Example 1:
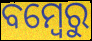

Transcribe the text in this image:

ବମ୍ବେରୁ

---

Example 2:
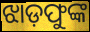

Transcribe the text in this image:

ଝାଡ଼ଫୁଙ୍କ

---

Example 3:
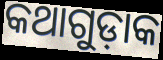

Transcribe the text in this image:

କଥାଗୁଡ଼ାକ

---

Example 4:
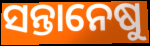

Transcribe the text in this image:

ସନ୍ତାନେଷୁ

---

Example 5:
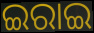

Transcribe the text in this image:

ଇରାଇ